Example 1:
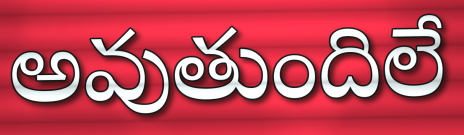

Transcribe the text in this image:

అవుతుందిలే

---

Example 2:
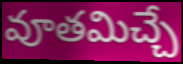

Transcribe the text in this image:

వూతమిచ్చే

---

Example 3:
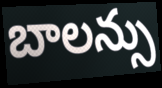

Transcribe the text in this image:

బాలన్సు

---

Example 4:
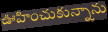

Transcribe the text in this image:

ఊహించుకున్నాను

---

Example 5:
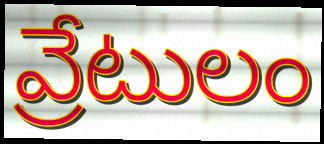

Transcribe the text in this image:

వ్రేటులం